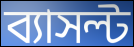
ব্যাসল্ট